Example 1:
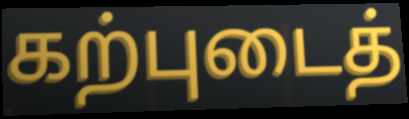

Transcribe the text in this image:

கற்புடைத்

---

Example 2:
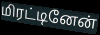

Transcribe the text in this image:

மிரட்டினேன்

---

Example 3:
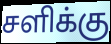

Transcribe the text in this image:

சளிக்கு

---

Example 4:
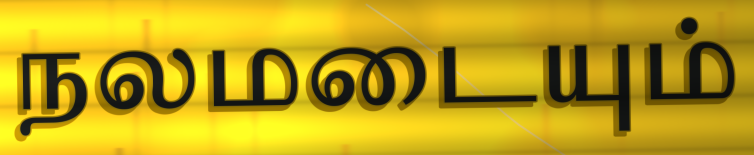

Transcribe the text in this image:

நலமடையும்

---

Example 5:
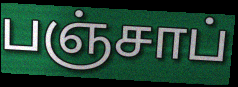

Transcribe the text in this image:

பஞ்சாப்